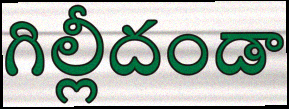
గిల్లీదండా